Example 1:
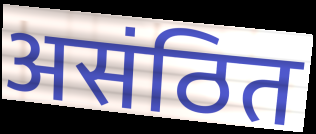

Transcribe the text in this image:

असंठित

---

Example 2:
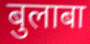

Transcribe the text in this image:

बुलाबा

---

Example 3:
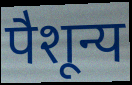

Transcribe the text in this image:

पैशून्य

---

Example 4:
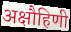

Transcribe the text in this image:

अक्षौहिणी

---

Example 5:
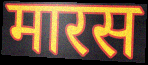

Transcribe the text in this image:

मारस